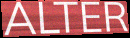
ALTER